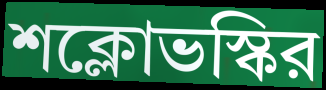
শক্লোভস্কির